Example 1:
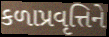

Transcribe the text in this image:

કળાપ્રવૃત્તિને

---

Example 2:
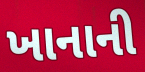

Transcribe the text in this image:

ખાનાની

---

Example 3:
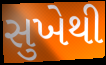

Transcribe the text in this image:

સુખેથી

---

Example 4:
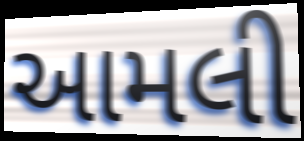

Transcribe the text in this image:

આમલી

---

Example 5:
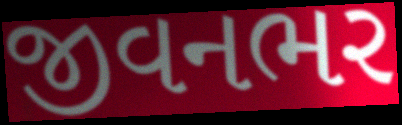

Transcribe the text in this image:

જીવનભર